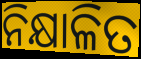
ନିକ୍ଷାଳିତ